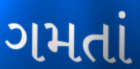
ગમતાં